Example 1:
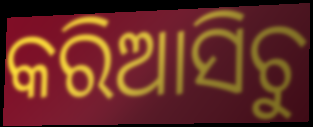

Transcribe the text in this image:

କରିଆସିଚୁ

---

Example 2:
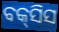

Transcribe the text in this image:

ବକ୍‍ସିସ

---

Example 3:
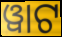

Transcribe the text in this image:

ୱାଟ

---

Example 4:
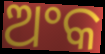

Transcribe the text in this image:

ଅଂକ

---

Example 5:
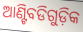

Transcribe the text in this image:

ଆଣ୍ଟିବଡିଗୁଡ଼ିକ